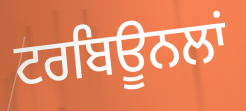
ਟਰਬਿਊਨਲਾਂ